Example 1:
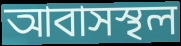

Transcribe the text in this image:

আবাসস্থল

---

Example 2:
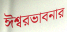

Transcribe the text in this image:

ঈশ্বরভাবনার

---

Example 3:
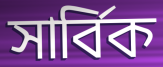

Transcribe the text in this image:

সার্বিক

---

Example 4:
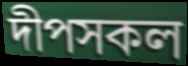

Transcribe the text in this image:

দীপসকল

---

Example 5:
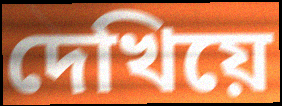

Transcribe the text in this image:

দেখিয়ে